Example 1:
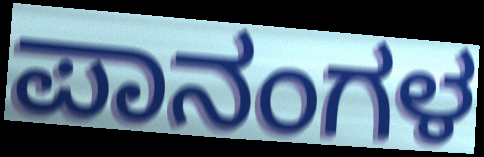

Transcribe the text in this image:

ಪಾನಂಗಳ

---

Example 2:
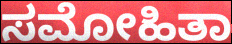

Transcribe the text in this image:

ಸಮೋಹಿತಾ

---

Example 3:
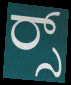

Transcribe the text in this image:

ರ್‍ಸ್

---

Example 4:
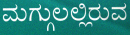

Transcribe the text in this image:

ಮಗ್ಗುಲಲ್ಲಿರುವ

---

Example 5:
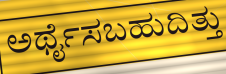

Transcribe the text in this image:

ಅರ್ಥೈಸಬಹುದಿತ್ತು